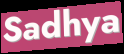
Sadhya